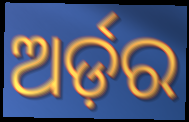
ଅର୍ଡ଼ର